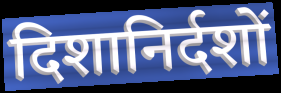
दिशानिर्दशों